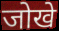
जोखे